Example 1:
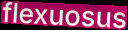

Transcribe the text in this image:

flexuosus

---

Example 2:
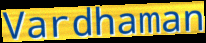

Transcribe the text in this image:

Vardhaman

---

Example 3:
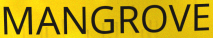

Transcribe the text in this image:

MANGROVE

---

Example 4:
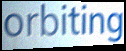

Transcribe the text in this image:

orbiting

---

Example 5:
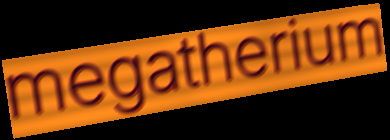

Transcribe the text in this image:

megatherium